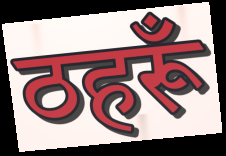
ठहरूँ